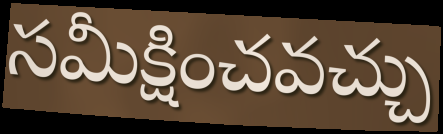
సమీక్షించవచ్చు